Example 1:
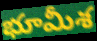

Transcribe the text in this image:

భూమీశ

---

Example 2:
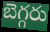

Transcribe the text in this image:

బెగ్గరు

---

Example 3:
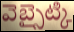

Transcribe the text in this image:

వెబ్సైట్కి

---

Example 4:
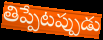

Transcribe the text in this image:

తిప్పేటప్పుడు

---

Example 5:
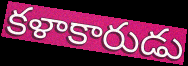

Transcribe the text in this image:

కళాకారుడు